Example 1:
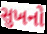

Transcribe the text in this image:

સુખનો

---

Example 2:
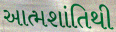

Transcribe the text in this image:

આત્મશાંતિથી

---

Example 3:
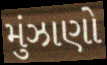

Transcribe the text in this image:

મુંઝાણો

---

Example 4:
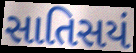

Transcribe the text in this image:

સાતિસયં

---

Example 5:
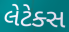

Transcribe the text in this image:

લેટેક્સ